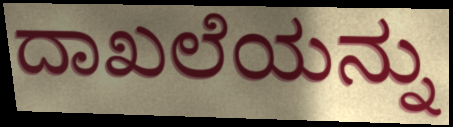
ದಾಖಲೆಯನ್ನು